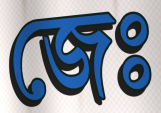
জেঃ